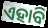
ଏହାବି